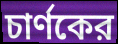
চার্ণকের